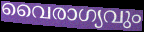
വൈരാഗ്യവും